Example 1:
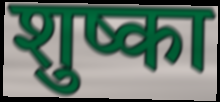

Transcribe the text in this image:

शुष्का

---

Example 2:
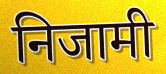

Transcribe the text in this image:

निजामी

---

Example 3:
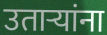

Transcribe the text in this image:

उताऱ्यांना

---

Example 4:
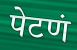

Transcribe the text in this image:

पेटणं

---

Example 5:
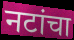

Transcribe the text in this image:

नटांचा